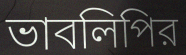
ভাবলিপির